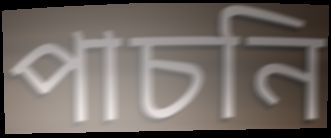
পাচনি